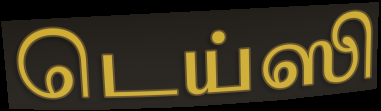
டெய்ஸி